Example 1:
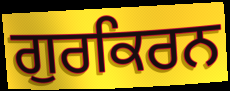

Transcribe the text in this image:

ਗੁਰਕਿਰਨ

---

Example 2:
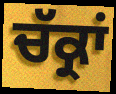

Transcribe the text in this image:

ਚੱਕ੍ਰਾਂ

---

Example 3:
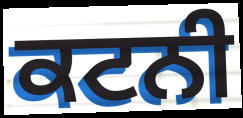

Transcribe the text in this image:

ਕਟਨੀ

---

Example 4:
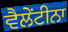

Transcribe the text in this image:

ਵੈਲੇਂਟੀਨਾ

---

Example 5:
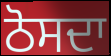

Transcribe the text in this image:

ਠੋਸਦਾ